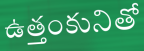
ఉత్తంకునితో